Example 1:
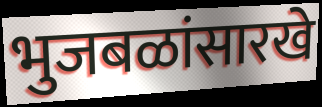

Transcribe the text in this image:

भुजबळांसारखे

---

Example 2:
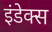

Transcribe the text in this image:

इंडेक्स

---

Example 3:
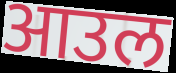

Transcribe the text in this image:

आउल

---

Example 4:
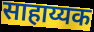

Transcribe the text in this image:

साहाय्यक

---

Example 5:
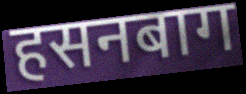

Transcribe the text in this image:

हसनबाग